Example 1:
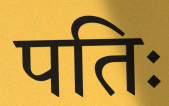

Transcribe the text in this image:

पतिः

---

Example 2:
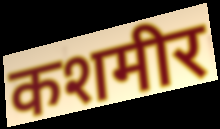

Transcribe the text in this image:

कशमीर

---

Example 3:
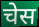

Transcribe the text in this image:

चेस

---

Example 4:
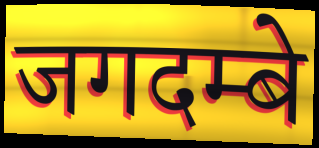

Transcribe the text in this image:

जगदम्बे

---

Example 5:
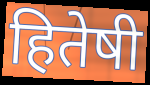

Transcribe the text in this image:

हितेषी